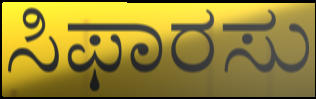
ಸಿಫಾರಸು